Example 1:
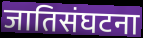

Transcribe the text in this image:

जातिसंघटना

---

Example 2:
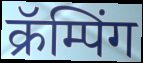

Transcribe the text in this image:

क्रॅम्पिंग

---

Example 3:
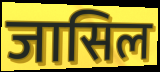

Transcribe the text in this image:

जासिल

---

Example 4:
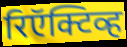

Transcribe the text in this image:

रिऍक्टिव्ह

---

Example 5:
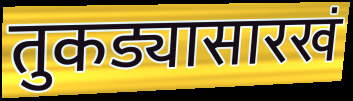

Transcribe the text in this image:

तुकड्यासारखं